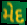
મેદ